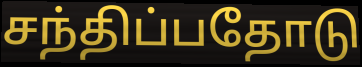
சந்திப்பதோடு